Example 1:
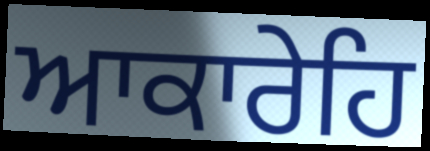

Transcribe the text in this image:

ਆਕਾਰੇਹਿ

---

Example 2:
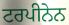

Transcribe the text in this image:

ਟਰਪੀਨੇਨ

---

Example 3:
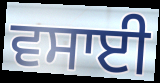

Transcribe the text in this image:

ਵਸਾਈ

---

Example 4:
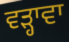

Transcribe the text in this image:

ਵੜ੍ਹਾਵਾ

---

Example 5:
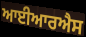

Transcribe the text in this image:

ਆਈਆਰਐਸ